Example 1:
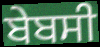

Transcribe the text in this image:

ਬੇਬਸੀ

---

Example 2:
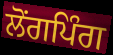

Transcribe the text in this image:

ਲੋਂਗਪਿੰਗ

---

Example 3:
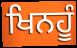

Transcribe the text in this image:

ਖਿਨਹੂੰ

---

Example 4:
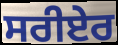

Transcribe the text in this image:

ਸਰੀਏਰ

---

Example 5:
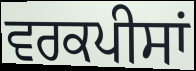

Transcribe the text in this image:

ਵਰਕਪੀਸਾਂ